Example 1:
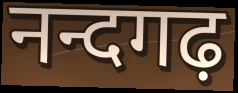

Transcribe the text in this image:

नन्दगढ़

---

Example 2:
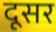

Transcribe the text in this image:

दूसर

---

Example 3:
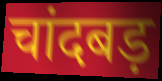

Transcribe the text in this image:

चांदबड़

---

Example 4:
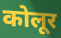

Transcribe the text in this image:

कोलूर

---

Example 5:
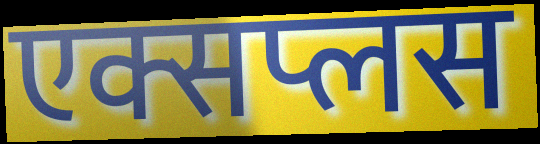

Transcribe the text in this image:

एक्सप्लस